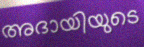
അദായിയുടെ